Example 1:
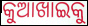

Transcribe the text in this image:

କୁଆଖାଇକୁ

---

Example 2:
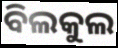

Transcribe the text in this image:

ବିଲକୁଲ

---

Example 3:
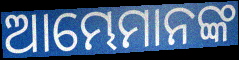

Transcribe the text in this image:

ଆମ୍ଭେମାନଙ୍କ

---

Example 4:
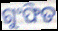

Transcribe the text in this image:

ଗୁଂଫିତ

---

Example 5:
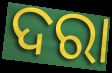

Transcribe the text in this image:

ଦରା